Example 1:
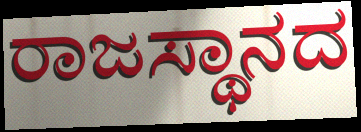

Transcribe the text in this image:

ರಾಜಸ್ಥಾನದ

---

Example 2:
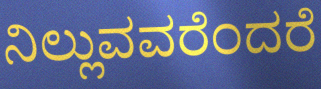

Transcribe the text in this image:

ನಿಲ್ಲುವವರೆಂದರೆ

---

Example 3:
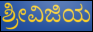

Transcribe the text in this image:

ಶ್ರೀವಿಜಿಯ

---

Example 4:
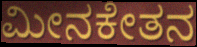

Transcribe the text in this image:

ಮೀನಕೇತನ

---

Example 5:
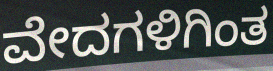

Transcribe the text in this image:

ವೇದಗಳಿಗಿಂತ